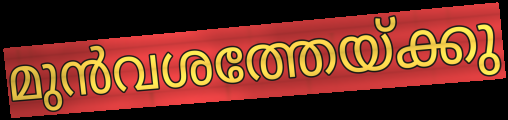
മുൻവശത്തേയ്ക്കു